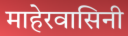
माहेरवासिनी